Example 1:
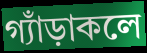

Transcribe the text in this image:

গ্যাঁড়াকলে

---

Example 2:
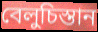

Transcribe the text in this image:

বেলুচিস্তান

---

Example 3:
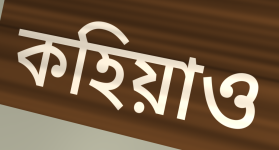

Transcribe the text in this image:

কহিয়াও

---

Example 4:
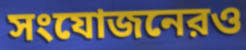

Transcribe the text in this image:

সংযোজনেরও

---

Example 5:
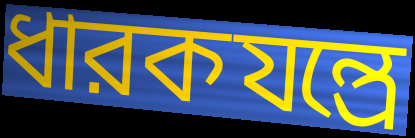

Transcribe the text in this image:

ধারকযন্ত্রে